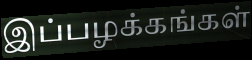
இப்பழக்கங்கள்